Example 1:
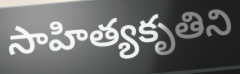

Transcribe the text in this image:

సాహిత్యకృతిని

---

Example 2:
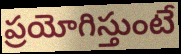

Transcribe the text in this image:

ప్రయోగిస్తుంటే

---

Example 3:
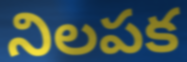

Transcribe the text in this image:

నిలపక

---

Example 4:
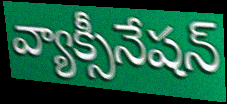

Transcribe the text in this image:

వ్యాక్సీనేషన్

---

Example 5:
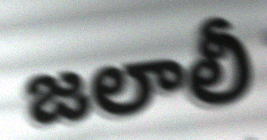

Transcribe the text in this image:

జలాలీ